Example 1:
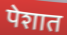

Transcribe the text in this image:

पेशात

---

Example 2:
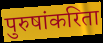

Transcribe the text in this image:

पुरुषांकरिता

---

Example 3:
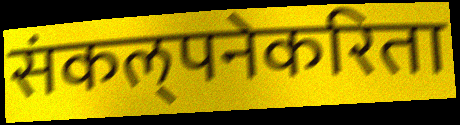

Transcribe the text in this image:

संकल्पनेकरिता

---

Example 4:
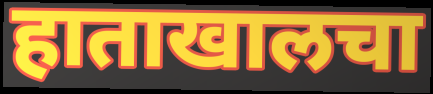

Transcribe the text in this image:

हाताखालचा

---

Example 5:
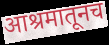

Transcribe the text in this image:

आश्रमातूनच